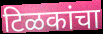
टिळकांचा